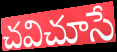
చవిచూసే